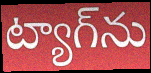
ట్యాగ్‌ను